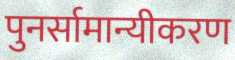
पुनर्सामान्यीकरण